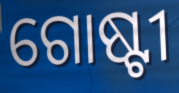
ଗୋଷ୍ଟୀ